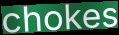
chokes